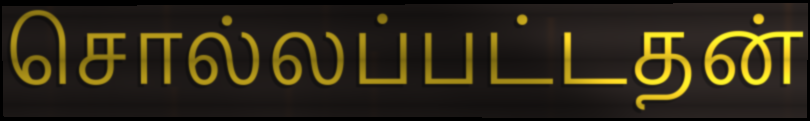
சொல்லப்பட்டதன்